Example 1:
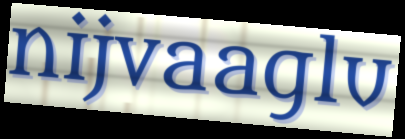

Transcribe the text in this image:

nijvaaglu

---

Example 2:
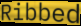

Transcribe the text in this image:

Ribbed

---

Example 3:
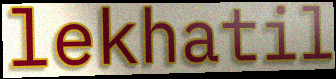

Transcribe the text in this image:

lekhatil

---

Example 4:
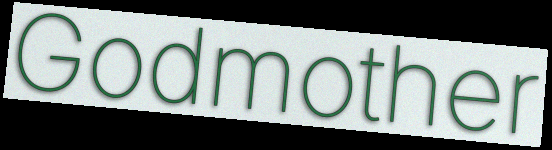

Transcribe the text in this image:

Godmother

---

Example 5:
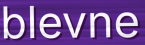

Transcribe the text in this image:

blevne